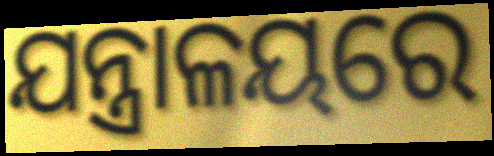
ଯନ୍ତ୍ରାଳୟରେ